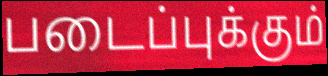
படைப்புக்கும்